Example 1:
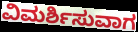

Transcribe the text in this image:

ವಿಮರ್ಶಿಸುವಾಗ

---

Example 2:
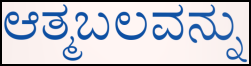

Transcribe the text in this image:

ಆತ್ಮಬಲವನ್ನು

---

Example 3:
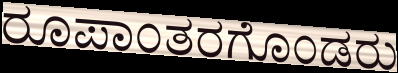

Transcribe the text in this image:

ರೂಪಾಂತರಗೊಂಡರು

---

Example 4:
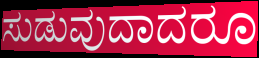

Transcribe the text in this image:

ಸುಡುವುದಾದರೂ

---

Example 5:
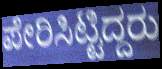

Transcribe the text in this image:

ಪೇರಿಸಿಟ್ಟಿದ್ದರು